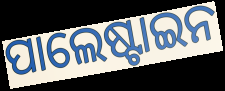
ପାଲେଷ୍ଟାଇନ